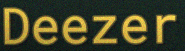
Deezer